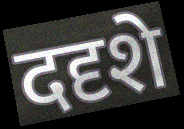
ददृशे